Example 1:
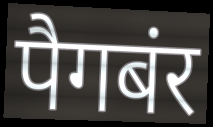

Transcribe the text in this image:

पैगबंर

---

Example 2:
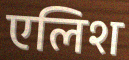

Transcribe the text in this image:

एलिश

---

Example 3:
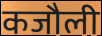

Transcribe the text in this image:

कजौली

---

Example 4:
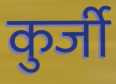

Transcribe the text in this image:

कुर्जी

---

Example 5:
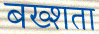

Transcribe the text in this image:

बख्शता